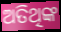
ଅତିଥିଙ୍କ